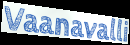
Vaanavalli